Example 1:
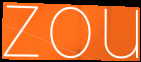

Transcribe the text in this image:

zou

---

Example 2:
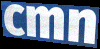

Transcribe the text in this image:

cmn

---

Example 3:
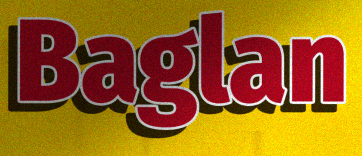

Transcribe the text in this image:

Baglan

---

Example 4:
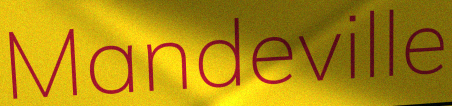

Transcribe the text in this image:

Mandeville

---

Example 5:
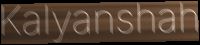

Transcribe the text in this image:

Kalyanshah